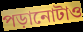
পড়ানোটাও